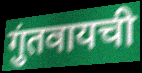
गुंतवायची